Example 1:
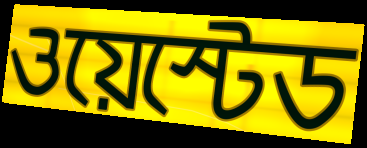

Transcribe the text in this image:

ওয়েস্টেড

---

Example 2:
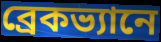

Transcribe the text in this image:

ব্রেকভ্যানে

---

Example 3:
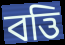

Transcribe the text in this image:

বত্তি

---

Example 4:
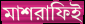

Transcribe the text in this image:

মাশরাফিই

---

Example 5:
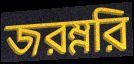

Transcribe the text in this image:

জরম্নরি